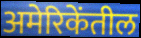
अमेरिकेंतील